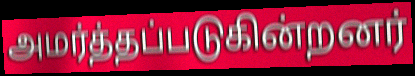
அமர்த்தப்படுகின்றனர்